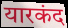
यारकंद